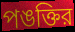
পঙক্তির